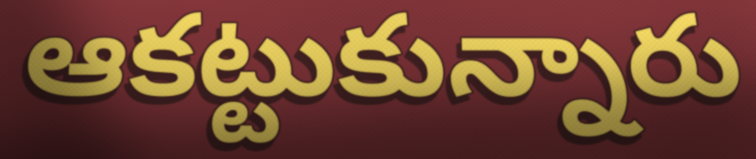
ఆకట్టుకున్నారు